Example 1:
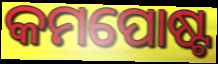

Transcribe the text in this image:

କମପୋଷ୍ଟ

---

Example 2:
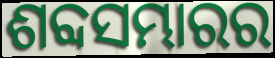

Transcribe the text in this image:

ଶବ୍ଦସମ୍ଭାରର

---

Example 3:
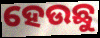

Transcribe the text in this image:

ହେଉଛୁ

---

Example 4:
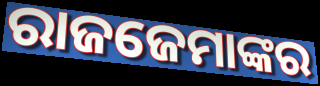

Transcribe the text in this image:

ରାଜଜେମାଙ୍କର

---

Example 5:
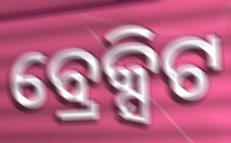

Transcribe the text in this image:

ବ୍ରେକ୍ସିଟ